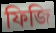
ফিজি